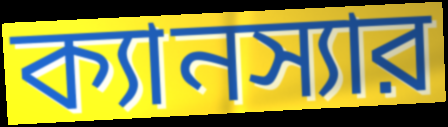
ক্যানস্যার